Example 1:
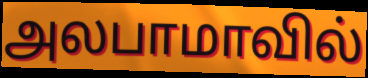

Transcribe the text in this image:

அலபாமாவில்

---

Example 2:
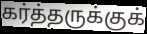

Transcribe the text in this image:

கர்த்தருக்குக்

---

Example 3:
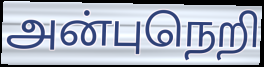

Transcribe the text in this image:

அன்புநெறி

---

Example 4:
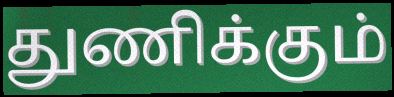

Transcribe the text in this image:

துணிக்கும்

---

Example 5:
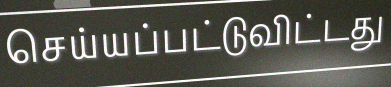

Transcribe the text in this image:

செய்யப்பட்டுவிட்டது